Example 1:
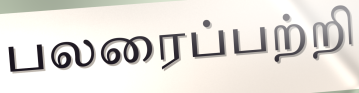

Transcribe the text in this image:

பலரைப்பற்றி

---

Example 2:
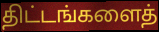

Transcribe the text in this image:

திட்டங்களைத்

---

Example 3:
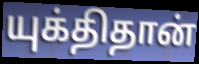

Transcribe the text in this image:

யுக்திதான்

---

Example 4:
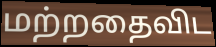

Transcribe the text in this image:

மற்றதைவிட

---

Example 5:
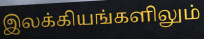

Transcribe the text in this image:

இலக்கியங்களிலும்